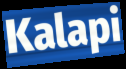
Kalapi